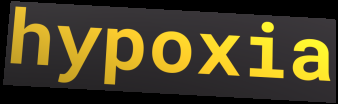
hypoxia